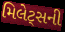
મિલેટ્સની